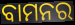
ବାମନର